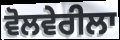
ਵੋਲਵੇਰੀਲਾ